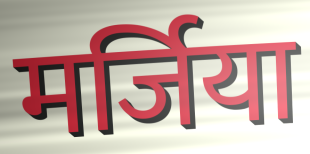
मर्जिया